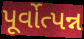
પૂર્વોત્પન્ન